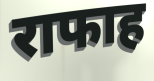
राफाह